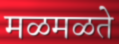
मळमळते